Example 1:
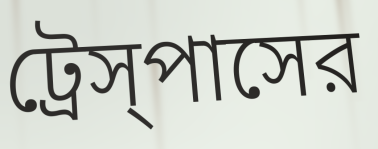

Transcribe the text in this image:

ট্রেস্‌পাসের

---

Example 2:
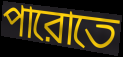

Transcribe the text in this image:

পারোতে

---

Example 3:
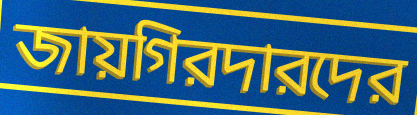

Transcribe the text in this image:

জায়গিরদারদের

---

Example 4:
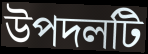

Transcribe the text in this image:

উপদলটি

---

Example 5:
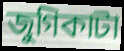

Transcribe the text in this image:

জুগিকাটা